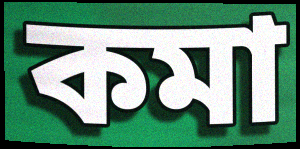
কমা